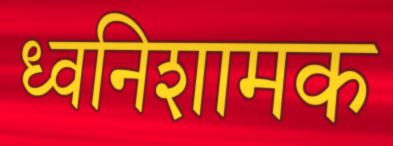
ध्वनिशामक